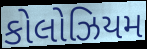
કોલોઝિયમ